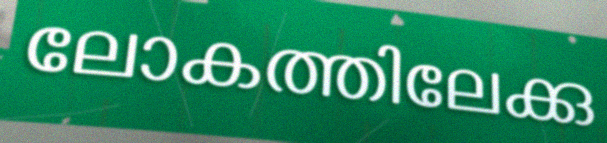
ലോകത്തിലേക്കു